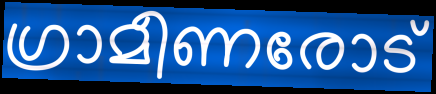
ഗ്രാമീണരോട്